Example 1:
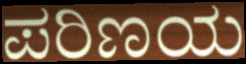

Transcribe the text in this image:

ಪರಿಣಯ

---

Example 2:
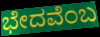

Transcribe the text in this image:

ಭೇದವೆಂಬ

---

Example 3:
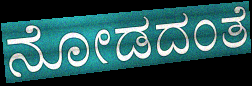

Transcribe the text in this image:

ನೋಡದಂತೆ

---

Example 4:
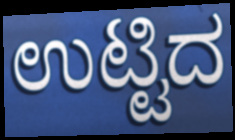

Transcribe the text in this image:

ಉಟ್ಟಿದ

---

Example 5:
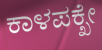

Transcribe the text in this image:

ಕಾಳಪಕ್ಖೇ